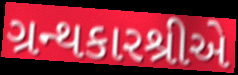
ગ્રન્થકારશ્રીએ